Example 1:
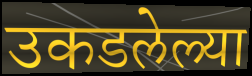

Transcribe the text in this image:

उकडलेल्या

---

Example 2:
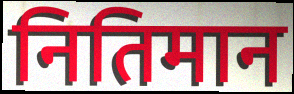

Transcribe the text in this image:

नितिमान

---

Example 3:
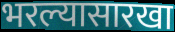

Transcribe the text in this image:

भरल्यासारखा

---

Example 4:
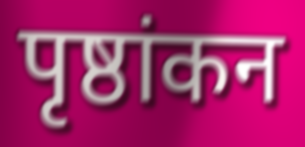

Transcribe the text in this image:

पृष्ठांकन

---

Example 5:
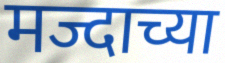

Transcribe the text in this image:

मज्दाच्या